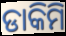
ଡାକିମି